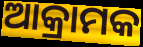
ଆକ୍ରାମକ